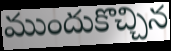
ముందుకొచ్చిన